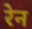
रेन